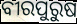
ବୀରପୁରୁଷ